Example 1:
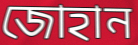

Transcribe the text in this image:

জোহান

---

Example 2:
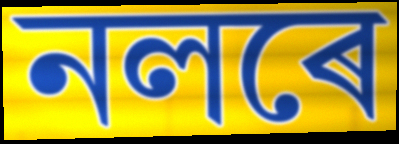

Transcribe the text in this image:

নলৰে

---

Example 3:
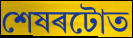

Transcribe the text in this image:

শেষৰটোত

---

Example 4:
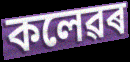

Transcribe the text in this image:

কলেৱৰ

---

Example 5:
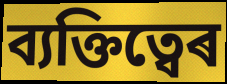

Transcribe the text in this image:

ব্যক্তিত্বেৰ